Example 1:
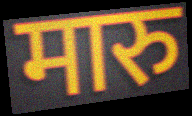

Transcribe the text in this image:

मारु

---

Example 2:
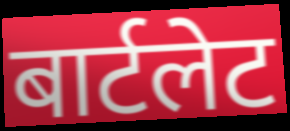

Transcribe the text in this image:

बार्टलेट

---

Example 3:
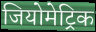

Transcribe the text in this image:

जियोमेट्रिक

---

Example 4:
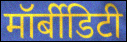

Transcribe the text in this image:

मॉर्बीडिटी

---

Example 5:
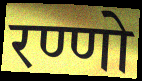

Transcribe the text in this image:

रण्णो